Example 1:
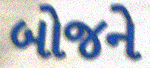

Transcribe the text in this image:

બોજને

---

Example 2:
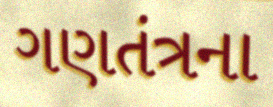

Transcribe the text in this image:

ગણતંત્રના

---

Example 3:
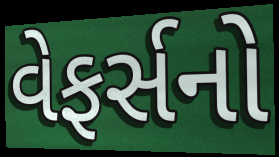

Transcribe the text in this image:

વેફર્સનો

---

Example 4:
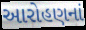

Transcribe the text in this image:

આરોહણનાં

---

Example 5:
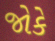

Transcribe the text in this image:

જોકે